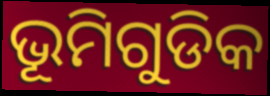
ଭୂମିଗୁଡିକ